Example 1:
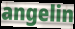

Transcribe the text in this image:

angelin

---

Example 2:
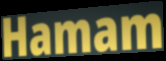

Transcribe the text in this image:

Hamam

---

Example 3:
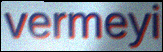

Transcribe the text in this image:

vermeyi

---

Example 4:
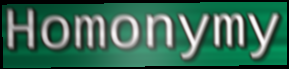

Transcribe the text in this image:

Homonymy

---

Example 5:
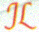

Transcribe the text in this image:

JL